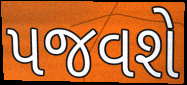
પજવશે